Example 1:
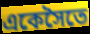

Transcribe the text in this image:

একেসৈতে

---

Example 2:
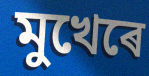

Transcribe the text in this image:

মুখেৰে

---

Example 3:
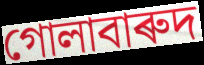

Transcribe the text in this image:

গোলাবাৰুদ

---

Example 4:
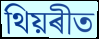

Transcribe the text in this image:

থিয়ৰীত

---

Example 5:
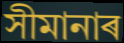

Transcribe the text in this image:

সীমানাৰ